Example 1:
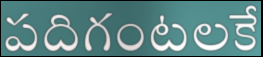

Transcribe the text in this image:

పదిగంటలకే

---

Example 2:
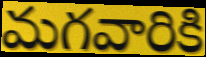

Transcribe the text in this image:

మగవారికి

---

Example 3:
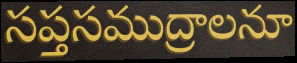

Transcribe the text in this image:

సప్తసముద్రాలనూ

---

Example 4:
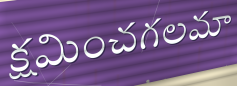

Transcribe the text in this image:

క్షమించగలమా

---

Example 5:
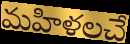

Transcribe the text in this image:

మహిళలచే